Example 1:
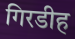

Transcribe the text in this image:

गिरडीह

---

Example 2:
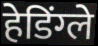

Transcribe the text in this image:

हेडिंग्‍ले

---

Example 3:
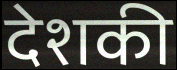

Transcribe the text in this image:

देशकी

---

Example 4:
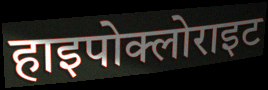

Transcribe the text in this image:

हाइपोक्लोराइट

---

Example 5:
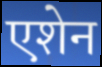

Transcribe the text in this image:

एशेन